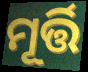
ମୂର୍ତ୍ତି